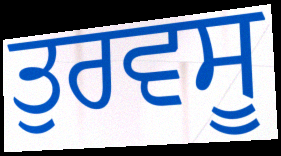
ਤੁਰਵਸੂ